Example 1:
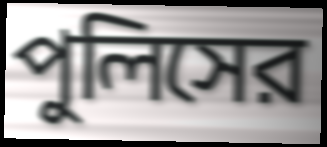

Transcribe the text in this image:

পুলিসের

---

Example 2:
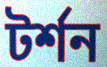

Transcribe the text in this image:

টর্শন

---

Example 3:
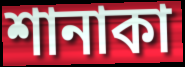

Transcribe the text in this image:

শানাকা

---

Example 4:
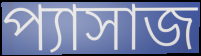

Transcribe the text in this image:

প্যাসাজ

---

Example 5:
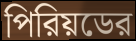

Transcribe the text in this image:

পিরিয়ডের